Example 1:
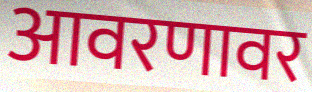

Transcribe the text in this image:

आवरणावर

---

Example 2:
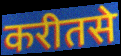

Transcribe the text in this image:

करीतसे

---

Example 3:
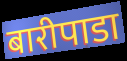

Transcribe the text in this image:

बारीपाडा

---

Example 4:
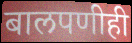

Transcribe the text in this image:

बालपणीही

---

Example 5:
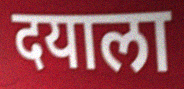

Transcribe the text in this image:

दयाला